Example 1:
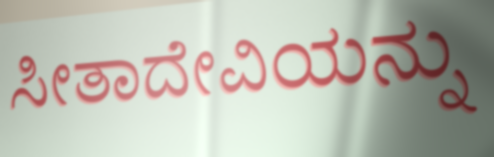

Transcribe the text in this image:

ಸೀತಾದೇವಿಯನ್ನು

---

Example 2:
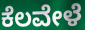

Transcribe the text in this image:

ಕೆಲವೇಳೆ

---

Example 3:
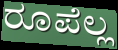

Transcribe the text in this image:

ರೂಪೆಲ್ಲ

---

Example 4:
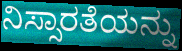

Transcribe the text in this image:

ನಿಸ್ಸಾರತೆಯನ್ನು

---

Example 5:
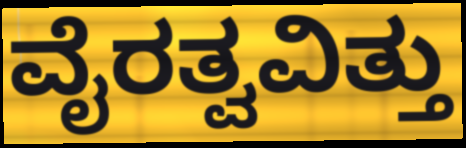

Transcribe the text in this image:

ವೈರತ್ವವಿತ್ತು